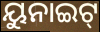
ୟୁନାଇଟ୍